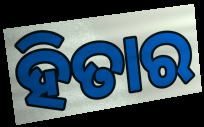
ହିତାର